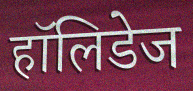
हॉलिडेज